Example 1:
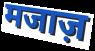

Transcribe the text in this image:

मजाज़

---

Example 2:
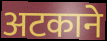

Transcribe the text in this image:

अटकाने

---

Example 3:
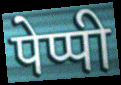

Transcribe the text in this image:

पेप्पी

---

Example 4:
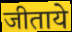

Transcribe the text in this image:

जीताये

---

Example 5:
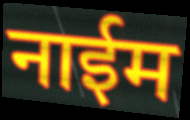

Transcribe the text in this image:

नाईम